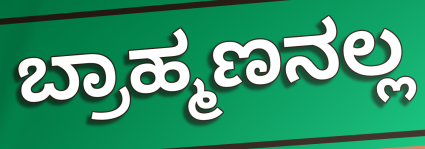
ಬ್ರಾಹ್ಮಣನಲ್ಲ